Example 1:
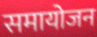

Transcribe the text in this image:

समायोजन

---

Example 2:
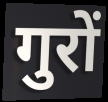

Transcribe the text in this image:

गुरों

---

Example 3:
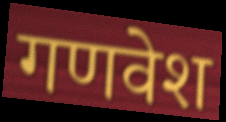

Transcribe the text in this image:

गणवेश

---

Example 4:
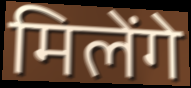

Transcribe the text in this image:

मिलेंगे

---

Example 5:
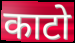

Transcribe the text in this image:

काटो